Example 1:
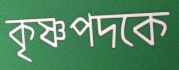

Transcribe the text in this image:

কৃষ্ণপদকে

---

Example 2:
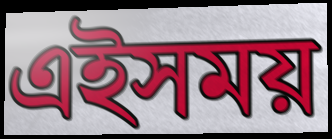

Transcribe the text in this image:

এইসময়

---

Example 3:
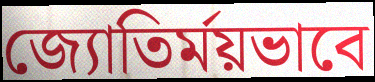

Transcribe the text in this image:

জ্যোতির্ময়ভাবে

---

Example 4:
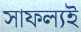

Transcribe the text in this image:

সাফল্যই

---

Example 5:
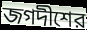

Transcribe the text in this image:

জগদীশের